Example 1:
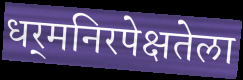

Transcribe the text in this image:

धर्मनिरपेक्षतेला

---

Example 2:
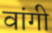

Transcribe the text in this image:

वांगी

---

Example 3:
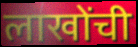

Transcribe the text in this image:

लाखोंची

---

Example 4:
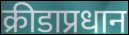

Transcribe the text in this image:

क्रीडाप्रधान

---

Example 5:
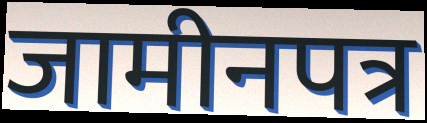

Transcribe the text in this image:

जामीनपत्र